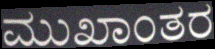
ಮುಖಾಂತರ